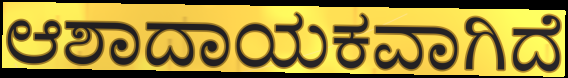
ಆಶಾದಾಯಕವಾಗಿದೆ